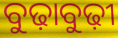
ବୁଢ଼ାବୁଢ଼ୀ